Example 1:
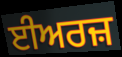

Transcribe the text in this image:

ਈਅਰਜ਼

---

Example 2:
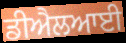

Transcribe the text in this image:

ਡੀਐਲਆਈ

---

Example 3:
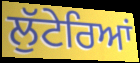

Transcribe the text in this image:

ਲੁੱਟੇਰਿਆਂ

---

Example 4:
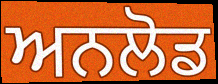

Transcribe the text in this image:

ਅਨਲੋਡ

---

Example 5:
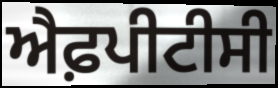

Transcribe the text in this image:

ਐਫ਼ਪੀਟੀਸੀ